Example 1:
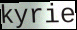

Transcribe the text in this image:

kyrie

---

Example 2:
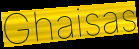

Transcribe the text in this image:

Ghaisas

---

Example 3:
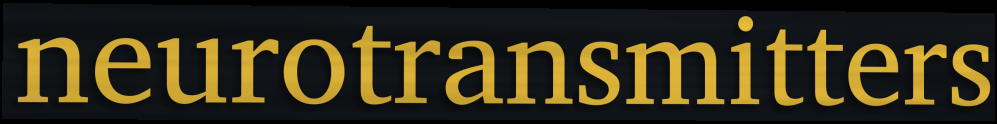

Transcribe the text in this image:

neurotransmitters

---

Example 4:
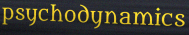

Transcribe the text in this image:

psychodynamics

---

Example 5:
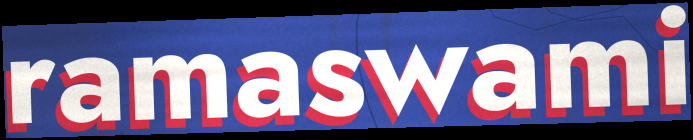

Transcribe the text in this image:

ramaswami